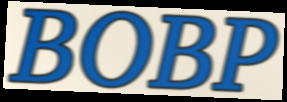
BOBP